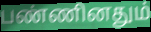
பண்ணினதும்